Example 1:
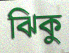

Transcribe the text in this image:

ঝিকু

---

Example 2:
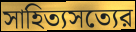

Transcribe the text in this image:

সাহিত্যসত্যের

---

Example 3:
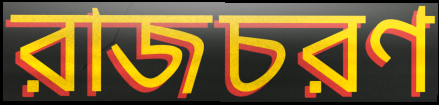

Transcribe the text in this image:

রাজচরণ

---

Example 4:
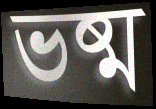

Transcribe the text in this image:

ভষ্ম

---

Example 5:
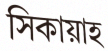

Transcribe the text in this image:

সিকায়াহ